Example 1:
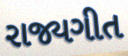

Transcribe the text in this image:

રાજ્યગીત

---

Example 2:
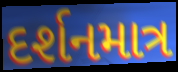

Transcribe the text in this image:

દર્શનમાત્ર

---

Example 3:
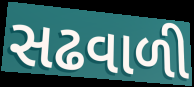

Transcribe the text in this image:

સઢવાળી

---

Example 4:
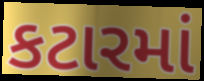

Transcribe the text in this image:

કટારમાં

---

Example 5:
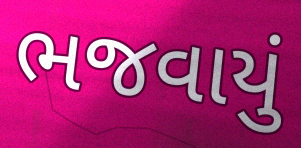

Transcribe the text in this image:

ભજવાયું